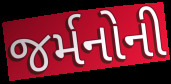
જર્મનોની